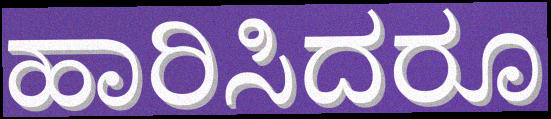
ಹಾರಿಸಿದರೂ